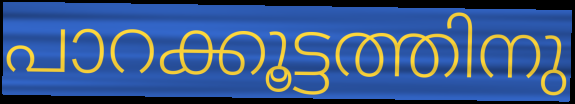
പാറക്കൂട്ടത്തിനു